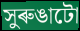
সুৰুঙাটো